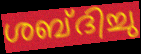
ശബ്ദിച്ചു